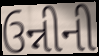
ઉન્નીની